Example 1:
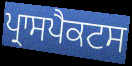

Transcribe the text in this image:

ਪ੍ਰਾਸਪੈਕਟਸ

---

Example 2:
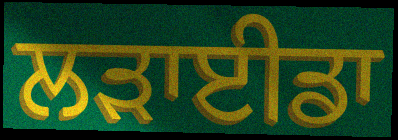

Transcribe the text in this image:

ਲੜਾਈਡਾ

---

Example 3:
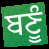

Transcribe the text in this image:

ਬਣੂੰ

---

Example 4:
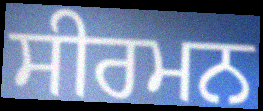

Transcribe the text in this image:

ਸੀਰਮਨ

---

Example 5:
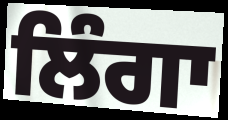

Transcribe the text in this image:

ਲਿੰਗਾ